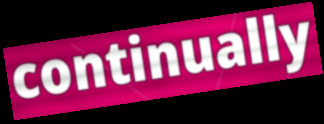
continually